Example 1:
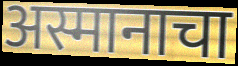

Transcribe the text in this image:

अस्मानाचा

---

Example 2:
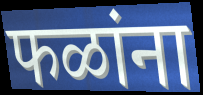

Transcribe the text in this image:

फळांना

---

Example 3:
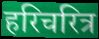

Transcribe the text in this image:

हरिचरित्र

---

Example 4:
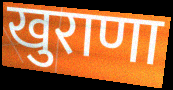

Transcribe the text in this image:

खुराणा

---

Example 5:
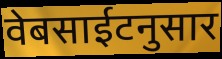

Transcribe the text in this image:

वेबसाईटनुसार